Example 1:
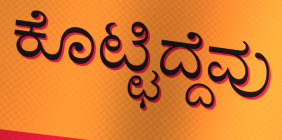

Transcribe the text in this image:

ಕೊಟ್ಟಿದ್ದೆವು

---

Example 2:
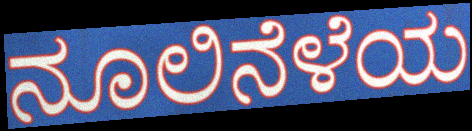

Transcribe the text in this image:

ನೂಲಿನೆಳೆಯ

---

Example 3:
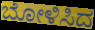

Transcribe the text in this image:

ಬೋಳಿಸಿದ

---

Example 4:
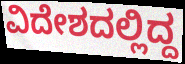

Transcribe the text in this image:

ವಿದೇಶದಲ್ಲಿದ್ದ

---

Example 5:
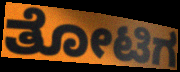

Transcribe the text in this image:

ತೋಟಿಗ